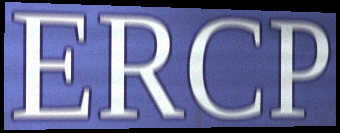
ERCP